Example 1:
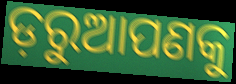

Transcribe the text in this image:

ଡ଼ରୁଆପଣକୁ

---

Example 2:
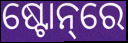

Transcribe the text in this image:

ଷ୍ଟୋନ୍‌ରେ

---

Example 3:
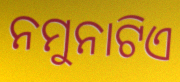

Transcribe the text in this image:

ନମୁନାଟିଏ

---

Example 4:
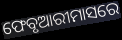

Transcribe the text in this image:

ଫେବୃଆରୀମାସରେ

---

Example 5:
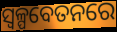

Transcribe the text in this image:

ସ୍ୱଳ୍ପବେତନରେ